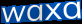
waxa